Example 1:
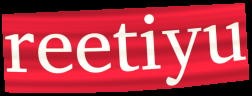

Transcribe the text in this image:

reetiyu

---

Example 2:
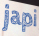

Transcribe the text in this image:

japi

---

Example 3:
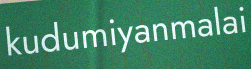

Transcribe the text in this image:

kudumiyanmalai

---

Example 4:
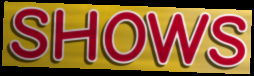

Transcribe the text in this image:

SHOWS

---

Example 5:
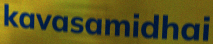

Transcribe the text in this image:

kavasamidhai